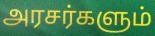
அரசர்களும்